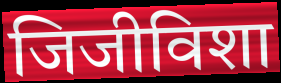
जिजीविशा